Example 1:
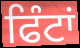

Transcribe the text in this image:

ਫਿੰਟਾਂ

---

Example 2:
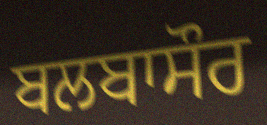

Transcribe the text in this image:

ਬਲਬਾਸੌਰ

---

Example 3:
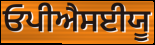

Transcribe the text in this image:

ਓਪੀਐਸਈਯੂ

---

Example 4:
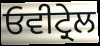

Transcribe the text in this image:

ਓਵੀਟ੍ਰੇਲ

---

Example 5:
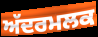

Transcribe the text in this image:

ਅੱਦਰਮਲਕ